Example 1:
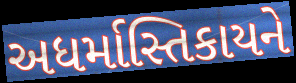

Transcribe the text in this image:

અધર્માસ્તિકાયને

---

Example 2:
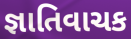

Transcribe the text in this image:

જ્ઞાતિવાચક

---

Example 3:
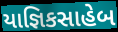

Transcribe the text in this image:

યાજ્ઞિકસાહેબ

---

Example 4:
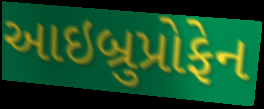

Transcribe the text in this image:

આઇબ્રુપ્રોફેન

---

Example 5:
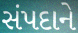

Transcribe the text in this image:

સંપદાને